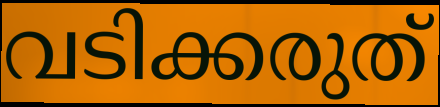
വടിക്കരുത്